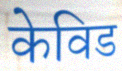
केविड